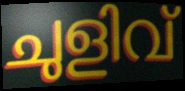
ചുളിവ്